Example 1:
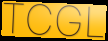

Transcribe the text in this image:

TCGL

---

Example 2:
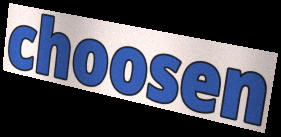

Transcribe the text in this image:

choosen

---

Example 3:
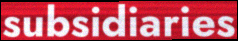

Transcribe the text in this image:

subsidiaries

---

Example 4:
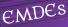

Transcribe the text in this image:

EMDEs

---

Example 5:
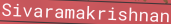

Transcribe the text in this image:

Sivaramakrishnan